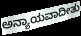
ಅನ್ಯಾಯವಾದೀತು